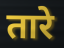
तारे